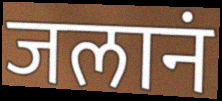
जलानं